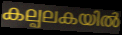
കല്പലകയിൽ